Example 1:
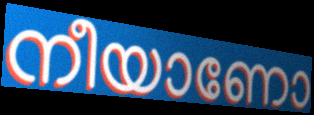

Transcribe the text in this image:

നീയാണോ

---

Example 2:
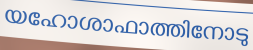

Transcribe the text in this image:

യഹോശാഫാത്തിനോടു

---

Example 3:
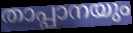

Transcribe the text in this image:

താപ്പാനയും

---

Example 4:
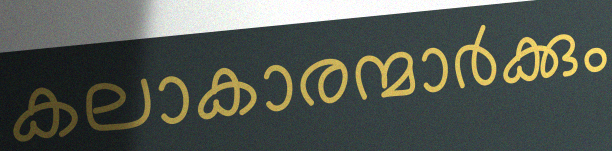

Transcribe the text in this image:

കലാകാരന്മാർക്കും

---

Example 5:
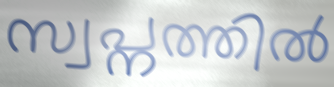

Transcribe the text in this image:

സ്വപ്നത്തിൽ